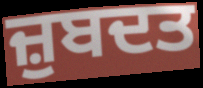
ਜ਼ੁਬਦਤ